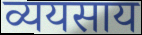
व्ययसाय